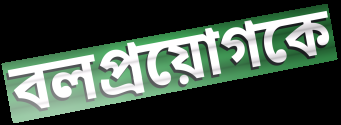
বলপ্রয়োগকে